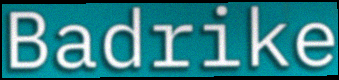
Badrike